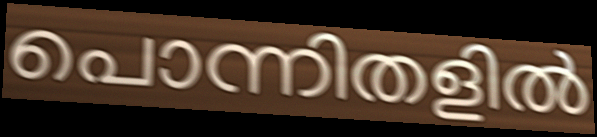
പൊന്നിതളിൽ